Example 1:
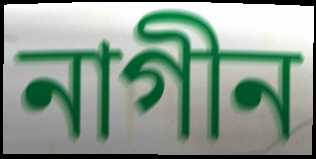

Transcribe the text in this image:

নাগীন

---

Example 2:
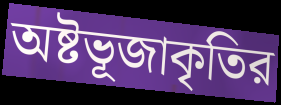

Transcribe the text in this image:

অষ্টভূজাকৃতির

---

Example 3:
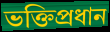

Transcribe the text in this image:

ভক্তিপ্রধান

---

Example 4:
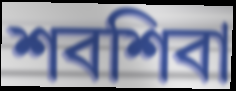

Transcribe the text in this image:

শবশিবা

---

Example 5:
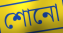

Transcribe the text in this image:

শোনো